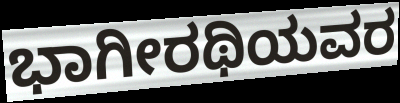
ಭಾಗೀರಥಿಯವರ